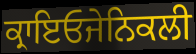
ਕ੍ਰਾਇਓਜੇਨਿਕਲੀ